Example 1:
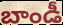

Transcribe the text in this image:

బాండీ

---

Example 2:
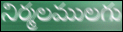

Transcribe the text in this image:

నిర్మలములగు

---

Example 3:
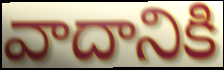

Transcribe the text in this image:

వాదానికి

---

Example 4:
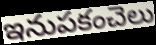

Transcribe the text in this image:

ఇనుపకంచెలు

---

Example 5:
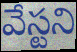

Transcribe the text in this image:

వేస్టని